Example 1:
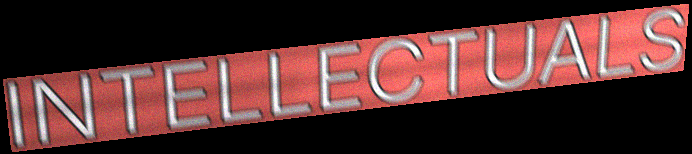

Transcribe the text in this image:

INTELLECTUALS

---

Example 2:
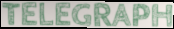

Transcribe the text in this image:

TELEGRAPH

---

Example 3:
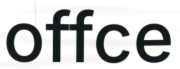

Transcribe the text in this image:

offce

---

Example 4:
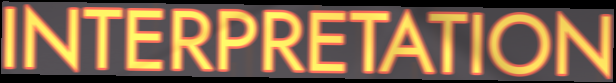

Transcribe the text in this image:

INTERPRETATION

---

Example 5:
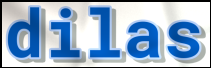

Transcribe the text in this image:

dilas